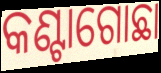
କଣ୍ଟାଗୋଛା